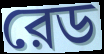
রেড